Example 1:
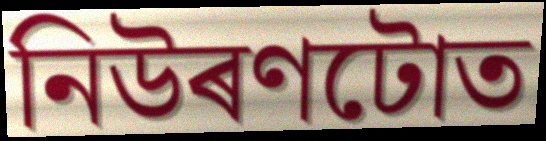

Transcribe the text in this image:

নিউৰণটোত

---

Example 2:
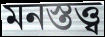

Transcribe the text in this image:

মনস্তত্ত্ব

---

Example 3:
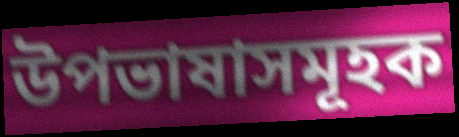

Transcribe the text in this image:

উপভাষাসমূহক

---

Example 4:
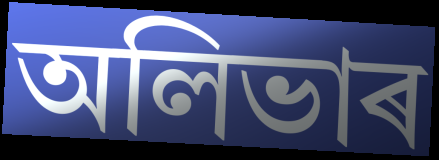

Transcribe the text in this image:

অলিভাৰ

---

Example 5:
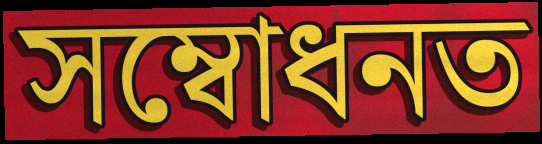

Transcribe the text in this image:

সম্বোধনত